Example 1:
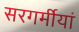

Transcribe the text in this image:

सरगर्मीयां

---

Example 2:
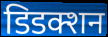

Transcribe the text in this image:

डिडक्शन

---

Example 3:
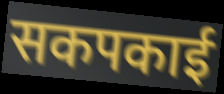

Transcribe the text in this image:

सकपकाई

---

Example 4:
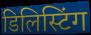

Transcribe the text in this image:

डिलिस्टिंग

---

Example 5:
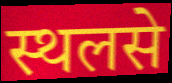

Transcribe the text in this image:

स्थलसे